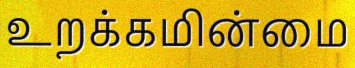
உறக்கமின்மை